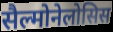
सैल्मोनेलोसिस